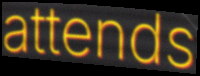
attends